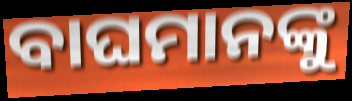
ବାଘମାନଙ୍କୁ